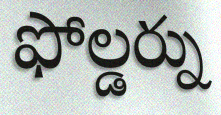
ఫోల్డర్ను